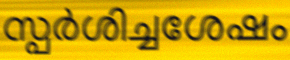
സ്പർശിച്ചശേഷം